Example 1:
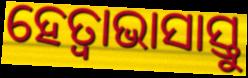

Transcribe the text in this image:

ହେତ୍ଵାଭାସାସ୍ତୁ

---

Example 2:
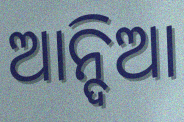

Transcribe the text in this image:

ଆନ୍ଦିଆ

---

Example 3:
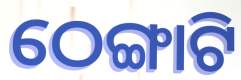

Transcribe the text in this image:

ଠେଙ୍ଗାଟି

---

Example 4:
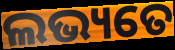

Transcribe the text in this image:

ଲଭ୍ୟତେ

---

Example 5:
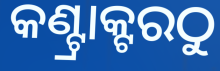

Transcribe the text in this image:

କଣ୍ଟ୍ରାକ୍ଟରଠୁ